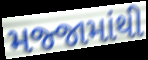
મજ્જામાંથી